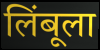
लिंबूला